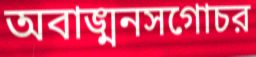
অবাঙ্মনসগোচর